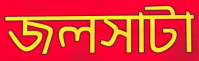
জলসাটা